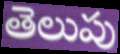
తెలుపు